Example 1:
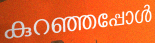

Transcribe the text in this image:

കുറഞ്ഞപ്പോൾ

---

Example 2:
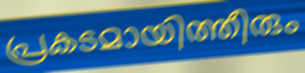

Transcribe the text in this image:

പ്രകടമായിത്തീരും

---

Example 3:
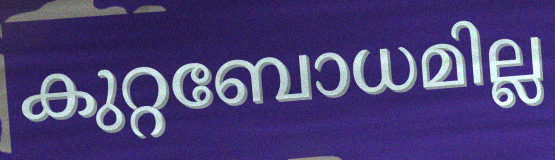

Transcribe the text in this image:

കുറ്റബോധമില്ല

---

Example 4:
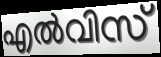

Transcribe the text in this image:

എൽവിസ്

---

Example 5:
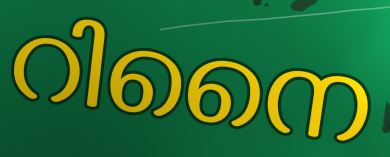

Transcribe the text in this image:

റിനൈ